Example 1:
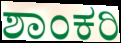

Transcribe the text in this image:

ಶಾಂಕರಿ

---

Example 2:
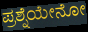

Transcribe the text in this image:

ಪ್ರಶ್ನೆಯೇನೋ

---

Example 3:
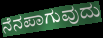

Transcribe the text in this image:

ನೆನಪಾಗುವುದು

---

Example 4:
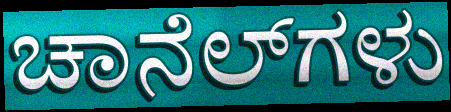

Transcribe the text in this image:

ಚಾನೆಲ್‌ಗಳು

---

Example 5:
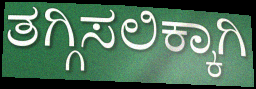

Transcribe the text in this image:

ತಗ್ಗಿಸಲಿಕ್ಕಾಗಿ